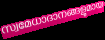
സ്വമേധാദാനങ്ങളുമായ